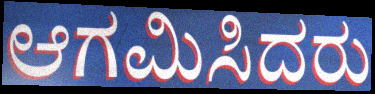
ಆಗಮಿಸಿದರು